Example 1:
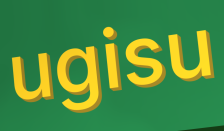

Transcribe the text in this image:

ugisu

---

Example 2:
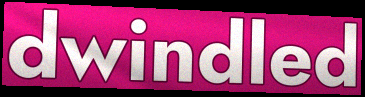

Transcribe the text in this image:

dwindled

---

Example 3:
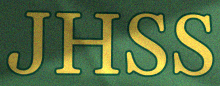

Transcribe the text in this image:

JHSS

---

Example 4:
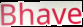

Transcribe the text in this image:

Bhave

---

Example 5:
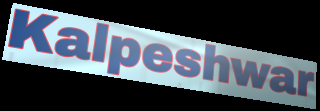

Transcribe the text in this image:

Kalpeshwar